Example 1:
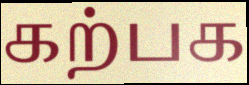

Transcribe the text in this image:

கற்பக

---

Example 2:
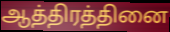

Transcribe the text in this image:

ஆத்திரத்தினை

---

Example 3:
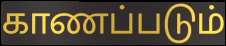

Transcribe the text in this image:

காணப்படும்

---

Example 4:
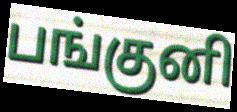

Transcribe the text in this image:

பங்குனி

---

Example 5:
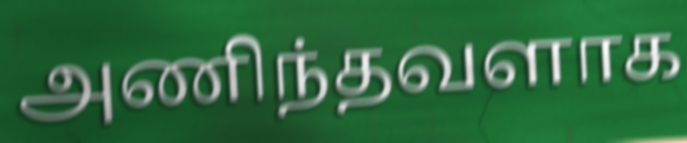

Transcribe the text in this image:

அணிந்தவளாக